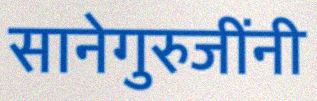
सानेगुरुजींनी